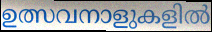
ഉത്സവനാളുകളിൽ